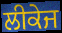
ਲੀਕੇਜ